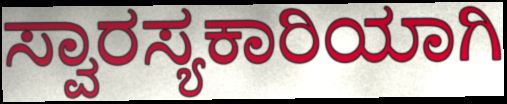
ಸ್ವಾರಸ್ಯಕಾರಿಯಾಗಿ